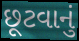
છૂટવાનું